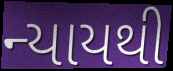
ન્યાયથી